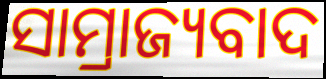
ସାମ୍ରାଜ୍ୟବାଦ